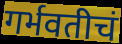
गर्भवतीचं